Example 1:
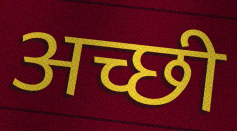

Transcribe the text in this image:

अच्‍छी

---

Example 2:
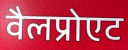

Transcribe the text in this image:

वैलप्रोएट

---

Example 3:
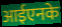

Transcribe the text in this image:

आईएनके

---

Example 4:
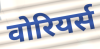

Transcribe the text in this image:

वोरियर्स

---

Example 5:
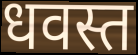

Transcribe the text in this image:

धवस्त